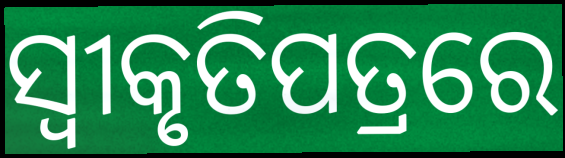
ସ୍ୱୀକୃତିପତ୍ରରେ